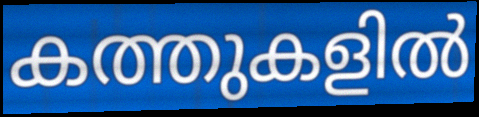
കത്തുകളിൽ